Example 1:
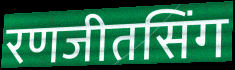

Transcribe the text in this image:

रणजीतसिंग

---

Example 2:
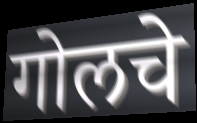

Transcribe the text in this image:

गोलचे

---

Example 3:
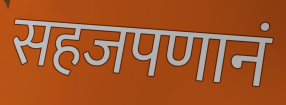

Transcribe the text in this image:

सहजपणानं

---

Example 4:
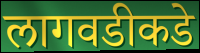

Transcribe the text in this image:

लागवडीकडे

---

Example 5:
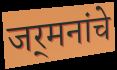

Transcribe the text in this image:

जर्मनांचे